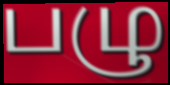
பழு